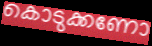
കൊടുക്കണോ